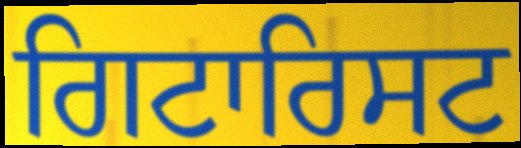
ਗਿਟਾਰਿਸਟ